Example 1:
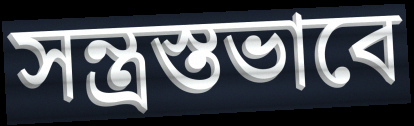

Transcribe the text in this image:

সন্ত্রস্তভাবে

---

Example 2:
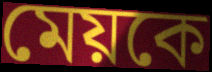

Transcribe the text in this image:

মেয়কে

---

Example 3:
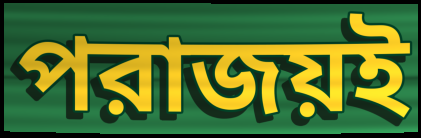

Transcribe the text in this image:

পরাজয়ই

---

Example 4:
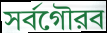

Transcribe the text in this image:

সর্বগৌরব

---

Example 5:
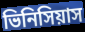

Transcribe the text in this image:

ভিনিসিয়াস